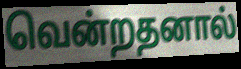
வென்றதனால்